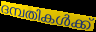
ദമ്പതികൾക്ക്